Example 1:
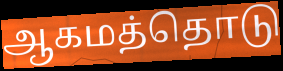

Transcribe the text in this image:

ஆகமத்தொடு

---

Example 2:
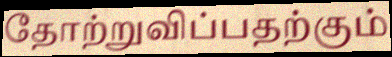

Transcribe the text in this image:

தோற்றுவிப்பதற்கும்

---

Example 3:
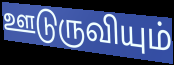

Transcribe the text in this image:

ஊடுருவியும்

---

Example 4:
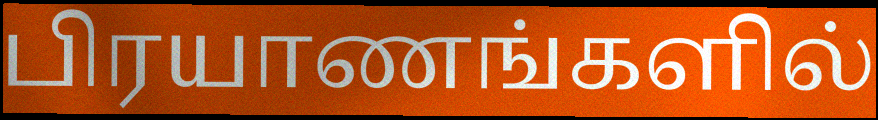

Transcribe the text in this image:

பிரயாணங்களில்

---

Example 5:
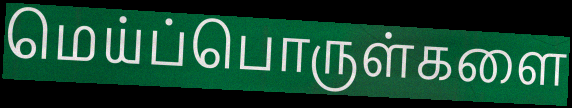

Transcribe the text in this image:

மெய்ப்பொருள்களை